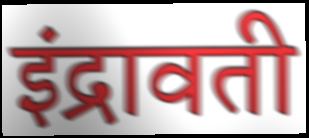
इंद्रावती